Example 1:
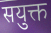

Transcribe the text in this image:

सयुक्त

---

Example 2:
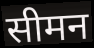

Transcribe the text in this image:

सीमन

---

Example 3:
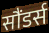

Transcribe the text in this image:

सौंडर्स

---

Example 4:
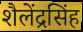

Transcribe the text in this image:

शैलेंद्रसिंह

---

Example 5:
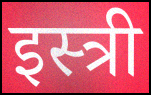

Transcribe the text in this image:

इस्त्री